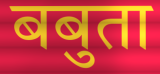
बबुता